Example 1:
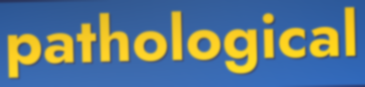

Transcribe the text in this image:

pathological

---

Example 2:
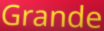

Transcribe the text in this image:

Grande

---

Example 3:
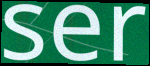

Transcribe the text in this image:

ser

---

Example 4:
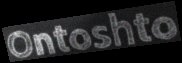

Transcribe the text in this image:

Ontoshto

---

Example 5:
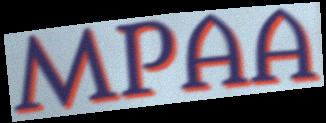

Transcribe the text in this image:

MPAA